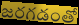
జరగడంతో